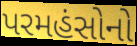
પરમહંસોનો